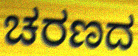
ಚರಣದ